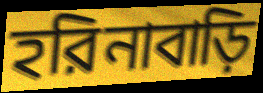
হরিনাবাড়ি